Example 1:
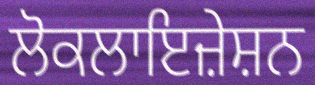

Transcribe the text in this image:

ਲੋਕਲਾਇਜ਼ੇਸ਼ਨ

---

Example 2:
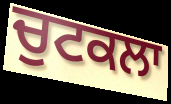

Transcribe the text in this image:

ਚੁਟਕਲਾ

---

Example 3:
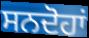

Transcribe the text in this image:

ਸਨਦੋਹਾਂ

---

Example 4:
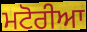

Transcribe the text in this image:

ਮਟੋਰੀਆ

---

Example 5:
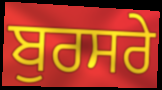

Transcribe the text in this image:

ਬੁਰਸਰੇ